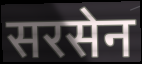
सरसेन